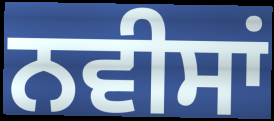
ਨਵੀਸਾਂ